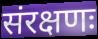
संरक्षणः